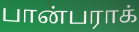
பான்பராக்